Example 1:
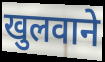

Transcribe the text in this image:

खुलवाने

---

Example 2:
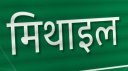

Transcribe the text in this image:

मिथाइल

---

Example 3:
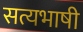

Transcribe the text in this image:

सत्यभाषी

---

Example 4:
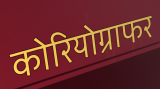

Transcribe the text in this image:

कोरियोग्राफर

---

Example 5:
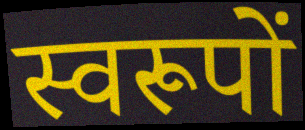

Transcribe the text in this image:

स्वरूपों